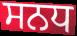
ਸਨਧ